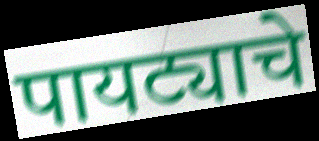
पायट्याचे